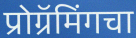
प्रोग्रॅमिंगचा